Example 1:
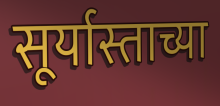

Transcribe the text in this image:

सूर्यास्ताच्या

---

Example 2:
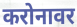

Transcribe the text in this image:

करोनावर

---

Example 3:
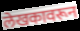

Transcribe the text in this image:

लेखकावरून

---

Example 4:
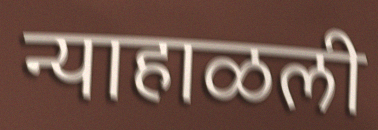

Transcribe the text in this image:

न्याहाळली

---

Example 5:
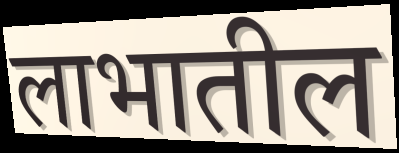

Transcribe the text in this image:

लाभातील